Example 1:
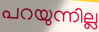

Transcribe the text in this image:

പറയുന്നില്ല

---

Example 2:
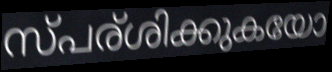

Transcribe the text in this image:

സ്പര്ശിക്കുകയോ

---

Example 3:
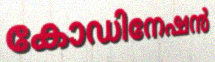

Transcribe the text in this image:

കോഡിനേഷൻ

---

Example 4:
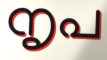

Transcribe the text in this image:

നൃപ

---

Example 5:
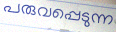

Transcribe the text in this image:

പരുവപ്പെടുന്ന